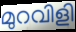
മുറവിളി